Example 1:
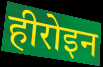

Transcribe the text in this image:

हीरोइन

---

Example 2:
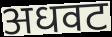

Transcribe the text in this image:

अधवट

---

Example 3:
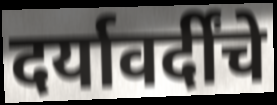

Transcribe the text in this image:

दर्यावर्दींचे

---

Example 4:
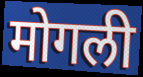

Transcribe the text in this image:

मोगली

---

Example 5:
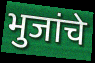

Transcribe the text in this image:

भुजांचे